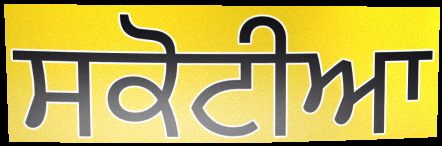
ਸਕੋਟੀਆ